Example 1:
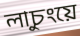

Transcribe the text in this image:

লাচুংয়ে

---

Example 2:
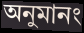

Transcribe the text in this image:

অনুমানং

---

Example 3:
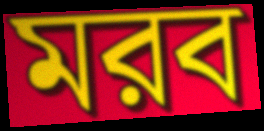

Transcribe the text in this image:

মরব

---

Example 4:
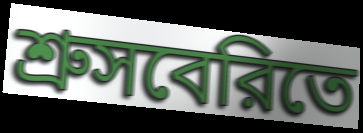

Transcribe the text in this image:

শ্রুসবেরিতে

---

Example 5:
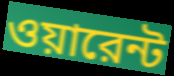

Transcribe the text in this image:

ওয়ারেন্ট